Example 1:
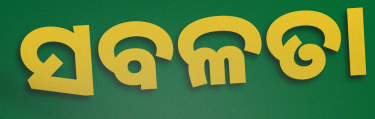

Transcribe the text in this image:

ସବଳତା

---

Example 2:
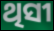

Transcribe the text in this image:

ଥିସୀ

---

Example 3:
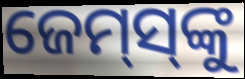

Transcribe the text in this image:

ଜେମ୍‌ସ୍‌ଙ୍କୁ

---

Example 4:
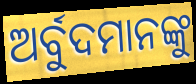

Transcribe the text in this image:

ଅର୍ବୁଦମାନଙ୍କୁ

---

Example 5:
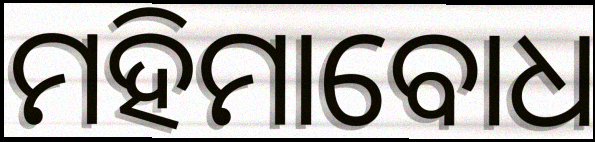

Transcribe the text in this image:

ମହିମାବୋଧ